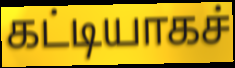
கட்டியாகச்